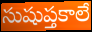
సుషుప్తకాలే